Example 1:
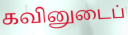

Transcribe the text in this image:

கவினுடைப்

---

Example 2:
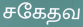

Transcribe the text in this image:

சகேதவ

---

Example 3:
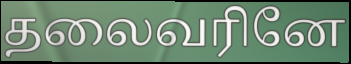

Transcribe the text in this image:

தலைவரினே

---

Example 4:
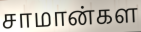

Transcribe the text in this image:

சாமான்கள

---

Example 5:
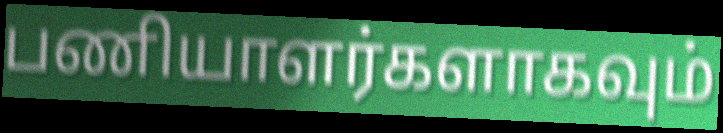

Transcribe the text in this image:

பணியாளர்களாகவும்